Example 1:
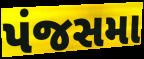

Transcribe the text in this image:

પંજસમા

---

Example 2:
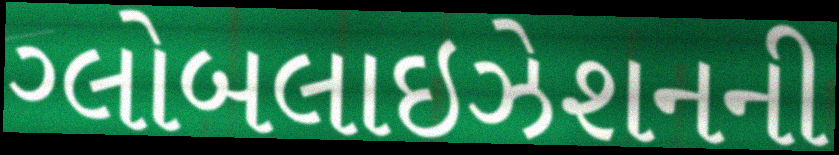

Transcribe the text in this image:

ગ્લોબલાઇઝેશનની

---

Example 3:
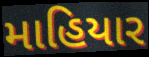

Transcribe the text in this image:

માહિયાર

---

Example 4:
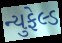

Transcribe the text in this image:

ન્યુફેલ્ડ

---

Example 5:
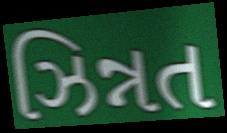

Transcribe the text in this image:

ઝિન્નત